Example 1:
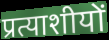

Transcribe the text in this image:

प्रत्याशीयों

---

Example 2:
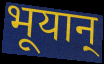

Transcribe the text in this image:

भूयान्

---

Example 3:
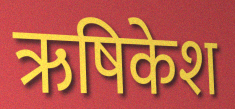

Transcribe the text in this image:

ऋषिकेश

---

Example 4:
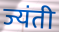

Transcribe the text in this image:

ज्यंती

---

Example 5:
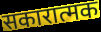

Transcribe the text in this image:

सकारात्मक